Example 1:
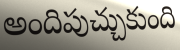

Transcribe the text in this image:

అందిపుచ్చుకుంది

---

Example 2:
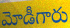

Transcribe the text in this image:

మోడీగారు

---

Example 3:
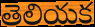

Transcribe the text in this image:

తెలియక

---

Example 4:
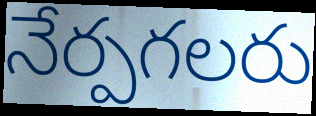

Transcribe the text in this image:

నేర్పగలరు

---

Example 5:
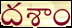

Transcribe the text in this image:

దశాం